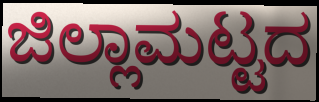
ಜಿಲ್ಲಾಮಟ್ಟದ